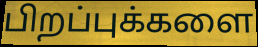
பிறப்புக்களை